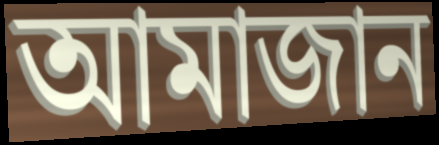
আমাজান